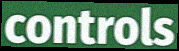
controls